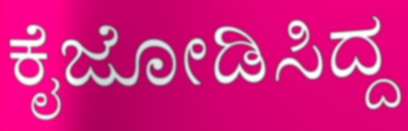
ಕೈಜೋಡಿಸಿದ್ದ